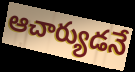
ఆచార్యుడనే